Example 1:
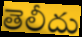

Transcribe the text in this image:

తెలీదు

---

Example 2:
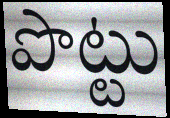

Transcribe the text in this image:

పొట్టు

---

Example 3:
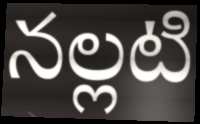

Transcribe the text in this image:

నల్లటి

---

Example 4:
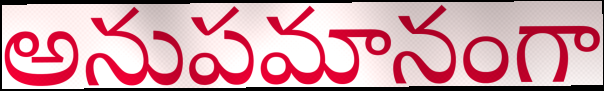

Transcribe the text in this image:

అనుపమానంగా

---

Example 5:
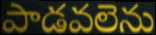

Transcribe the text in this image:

పాడవలెను